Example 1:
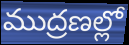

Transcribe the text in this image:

ముద్రణల్లో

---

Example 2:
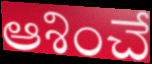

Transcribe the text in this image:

ఆశించే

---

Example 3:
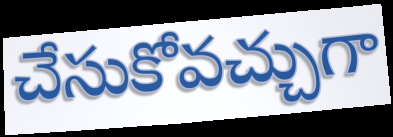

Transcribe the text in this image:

చేసుకోవచ్చుగా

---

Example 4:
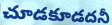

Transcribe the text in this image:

చూడకూడదనీ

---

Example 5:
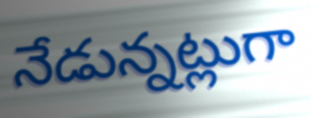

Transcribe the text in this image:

నేడున్నట్లుగా